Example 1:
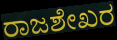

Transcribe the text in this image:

ರಾಜಶೇಖರ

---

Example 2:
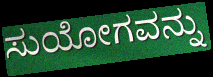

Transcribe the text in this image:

ಸುಯೋಗವನ್ನು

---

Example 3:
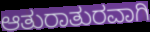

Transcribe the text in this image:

ಆತುರಾತುರವಾಗಿ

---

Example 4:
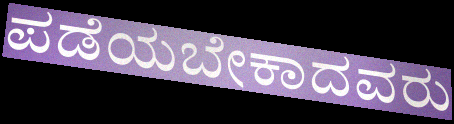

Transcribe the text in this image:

ಪಡೆಯಬೇಕಾದವರು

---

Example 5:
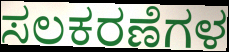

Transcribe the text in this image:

ಸಲಕರಣೆಗಳ